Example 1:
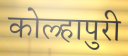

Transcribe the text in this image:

कोल्हापुरी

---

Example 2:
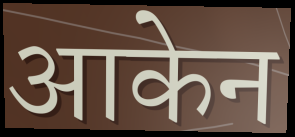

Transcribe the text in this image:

आकेन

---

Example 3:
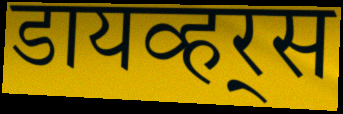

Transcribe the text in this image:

डायव्हर्स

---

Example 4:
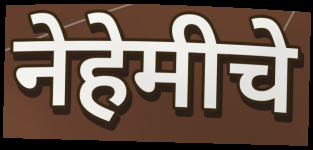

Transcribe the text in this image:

नेहेमीचे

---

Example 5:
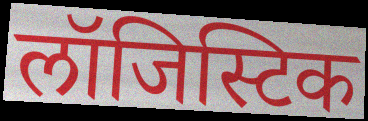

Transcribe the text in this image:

लॉजिस्टिक